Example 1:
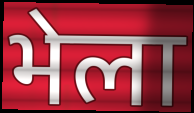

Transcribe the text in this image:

भेला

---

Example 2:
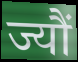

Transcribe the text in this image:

ज्यौं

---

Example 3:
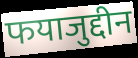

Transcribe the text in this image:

फयाजुद्दीन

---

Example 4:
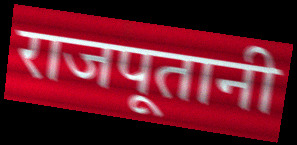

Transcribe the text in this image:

राजपूतानी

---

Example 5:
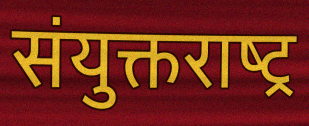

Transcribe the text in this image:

संयुक्तराष्ट्र